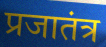
प्रजातंत्र